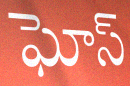
ఘోస్